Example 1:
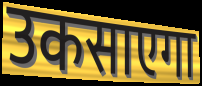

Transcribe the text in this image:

उकसाएगा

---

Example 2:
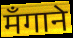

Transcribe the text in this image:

मँगाने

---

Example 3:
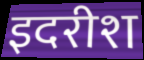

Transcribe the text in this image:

इदरीश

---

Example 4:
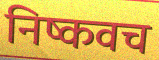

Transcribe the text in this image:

निष्कवच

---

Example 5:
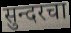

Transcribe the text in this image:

सुन्दरचा